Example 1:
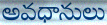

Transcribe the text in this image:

అవధానులు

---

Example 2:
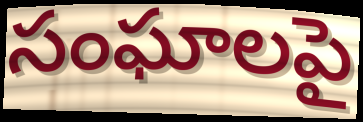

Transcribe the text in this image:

సంఘాలపై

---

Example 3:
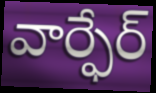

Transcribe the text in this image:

వార్ఫేర్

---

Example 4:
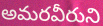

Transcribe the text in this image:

అమరవీరుని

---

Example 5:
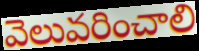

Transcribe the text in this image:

వెలువరించాలి